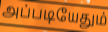
அப்படியேதும்